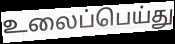
உலைப்பெய்து